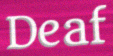
Deaf